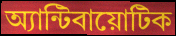
অ্যান্টিবায়োটিক